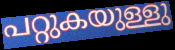
പറ്റുകയുള്ളു